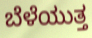
ಬೆಳೆಯುತ್ತ